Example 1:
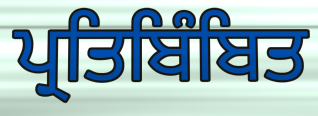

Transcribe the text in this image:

ਪ੍ਰਤਿਬਿੰਬਿਤ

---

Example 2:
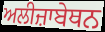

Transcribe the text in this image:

ਅਲੀਜ਼ਾਬੇਥਨ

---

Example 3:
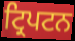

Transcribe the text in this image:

ਟ੍ਰਿਪਟਨ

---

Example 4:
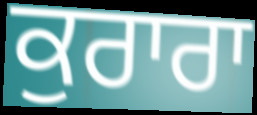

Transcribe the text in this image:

ਕੁਰਾਰਾ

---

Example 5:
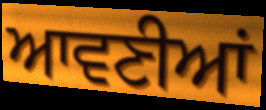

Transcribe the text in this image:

ਆਵਣੀਆਂ